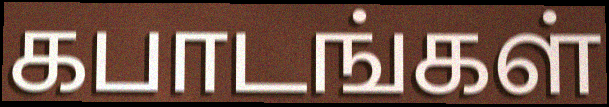
கபாடங்கள்